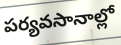
పర్యవసానాల్లో